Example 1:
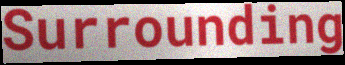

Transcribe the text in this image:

Surrounding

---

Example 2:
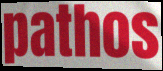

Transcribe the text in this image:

pathos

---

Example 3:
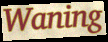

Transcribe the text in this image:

Waning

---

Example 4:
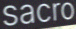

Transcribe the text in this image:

sacro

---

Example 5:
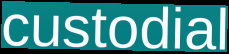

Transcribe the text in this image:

custodial